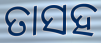
ତାସହ